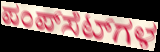
ಪಂಪ್‌ಸೆಟ್‌ಗಳ